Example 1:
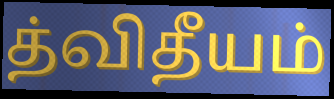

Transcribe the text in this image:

த்விதீயம்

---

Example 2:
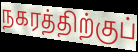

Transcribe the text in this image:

நகரத்திற்குப்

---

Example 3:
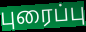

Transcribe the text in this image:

புரைப்பு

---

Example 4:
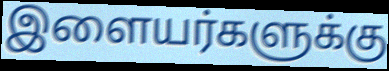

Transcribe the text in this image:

இளையர்களுக்கு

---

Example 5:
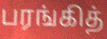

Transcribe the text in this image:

பரங்கித்